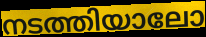
നടത്തിയാലോ